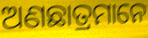
ଅଣଛାତ୍ରମାନେ